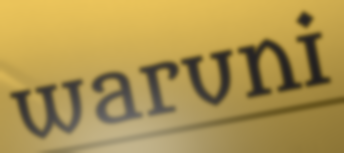
waruni